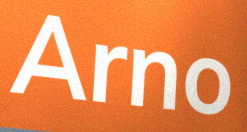
Arno